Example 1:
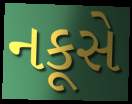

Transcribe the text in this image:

નકૂસે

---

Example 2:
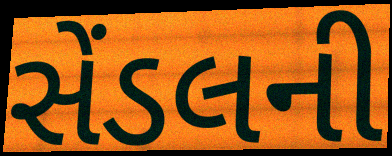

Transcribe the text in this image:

સેંડલની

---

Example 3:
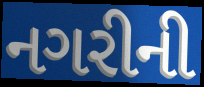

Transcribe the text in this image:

નગરીની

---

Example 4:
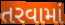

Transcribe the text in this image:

તરવામાં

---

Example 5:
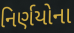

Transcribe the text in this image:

નિર્ણયોના